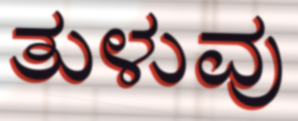
ತುಳುವು